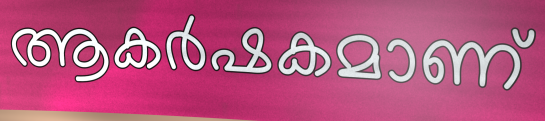
ആകർഷകമാണ്